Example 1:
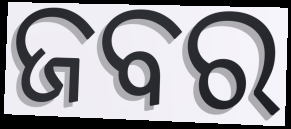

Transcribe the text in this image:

ଜବର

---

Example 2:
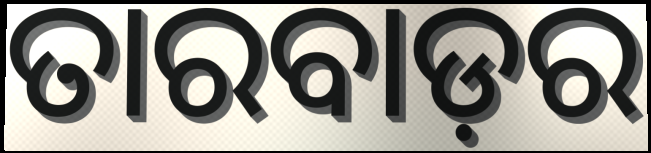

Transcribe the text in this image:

ତାରବାଡ଼ର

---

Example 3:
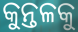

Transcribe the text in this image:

କୁନ୍ତଳକୁ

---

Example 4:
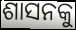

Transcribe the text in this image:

ଶାସନକୁ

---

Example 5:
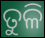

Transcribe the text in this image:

ତୁଳି